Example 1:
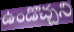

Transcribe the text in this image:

ఉండొచ్చని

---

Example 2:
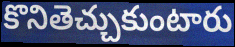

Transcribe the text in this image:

కొనితెచ్చుకుంటారు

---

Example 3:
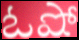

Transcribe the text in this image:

ఓషో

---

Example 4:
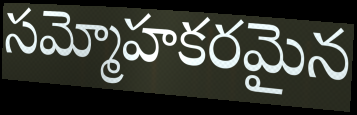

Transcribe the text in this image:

సమ్మోహకరమైన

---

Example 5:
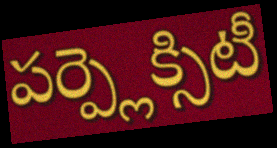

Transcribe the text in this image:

పర్ప్లెక్సిటీ